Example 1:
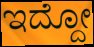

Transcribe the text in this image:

ಇದ್ದೋ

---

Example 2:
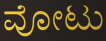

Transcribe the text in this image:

ವೋಟು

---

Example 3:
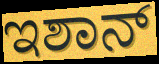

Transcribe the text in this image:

ಇಶಾನ್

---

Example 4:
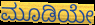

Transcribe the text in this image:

ಮೂಡಿಯೇ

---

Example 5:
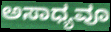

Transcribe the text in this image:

ಅಸಾಧ್ಯವೂ